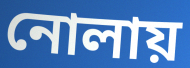
নোলায়